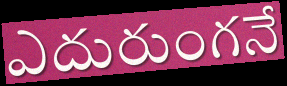
ఎదురుంగనే